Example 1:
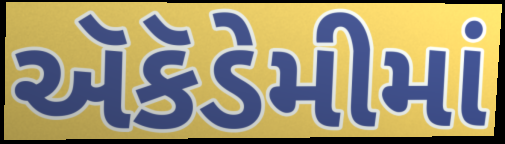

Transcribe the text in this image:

ઍકૅડેમીમાં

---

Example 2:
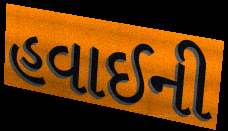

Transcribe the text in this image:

હવાઈની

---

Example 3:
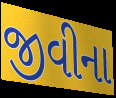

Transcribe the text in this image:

જીવીના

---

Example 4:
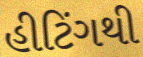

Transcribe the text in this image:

હીટિંગથી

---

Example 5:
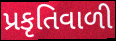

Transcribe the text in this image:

પ્રકૃતિવાળી